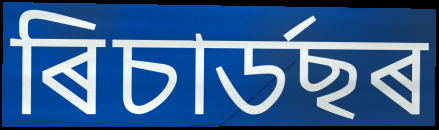
ৰিচাৰ্ডছৰ